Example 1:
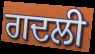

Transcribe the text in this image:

ਗਦਲੀ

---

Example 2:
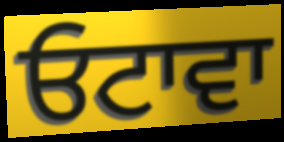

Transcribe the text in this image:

ਓਟਾਵਾ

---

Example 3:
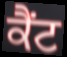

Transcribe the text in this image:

ਕੈਂਟ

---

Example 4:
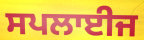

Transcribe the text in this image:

ਸਪਲਾਈਜ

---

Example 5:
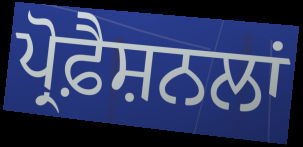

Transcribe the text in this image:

ਪ੍ਰੋਫ਼ੈਸ਼ਨਲਾਂ